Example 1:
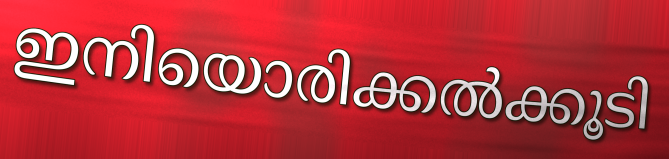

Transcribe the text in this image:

ഇനിയൊരിക്കൽക്കൂടി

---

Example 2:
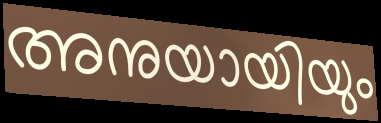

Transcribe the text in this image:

അനുയായിയും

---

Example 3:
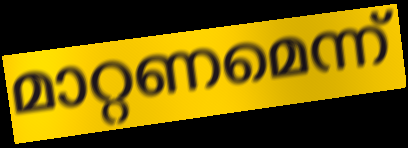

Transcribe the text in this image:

മാറ്റണമെന്ന്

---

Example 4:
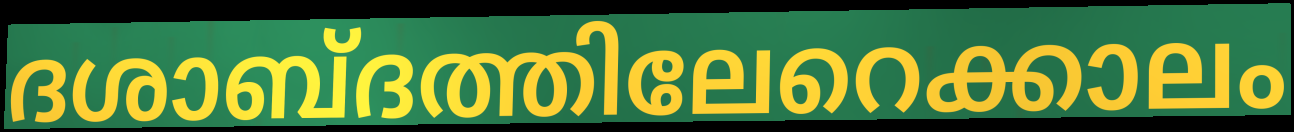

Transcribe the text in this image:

ദശാബ്ദത്തിലേറെക്കാലം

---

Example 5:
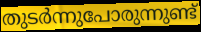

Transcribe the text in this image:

തുടർന്നുപോരുന്നുണ്ട്